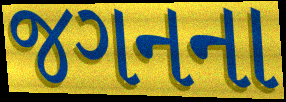
જગનના